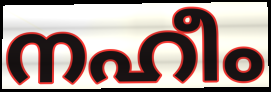
നഹീം